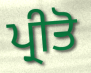
ਪ੍ਰੀਤੋ